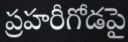
ప్రహరీగోడపై